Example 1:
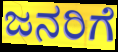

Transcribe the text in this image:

ಜನರಿಗೆ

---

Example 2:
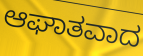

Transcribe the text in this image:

ಆಘಾತವಾದ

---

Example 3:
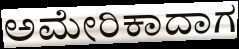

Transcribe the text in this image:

ಅಮೇರಿಕಾದಾಗ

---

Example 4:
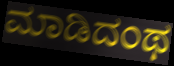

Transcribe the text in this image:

ಮಾಡಿದಂಥ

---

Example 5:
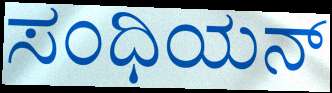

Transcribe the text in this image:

ಸಂಧಿಯನ್